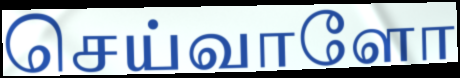
செய்வாளோ